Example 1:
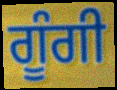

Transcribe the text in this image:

ਗੂੰਗੀ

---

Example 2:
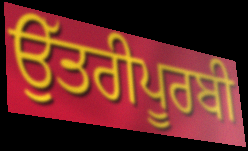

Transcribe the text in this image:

ਉੱਤਰੀਪੂਰਬੀ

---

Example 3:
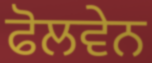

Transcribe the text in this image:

ਫੋਲਵੇਨ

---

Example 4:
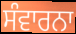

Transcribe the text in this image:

ਸੰਵਾਰਨਾ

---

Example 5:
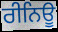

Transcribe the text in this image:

ਰੀਨਿਊ